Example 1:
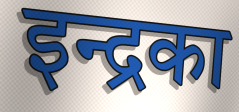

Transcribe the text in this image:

इन्द्रका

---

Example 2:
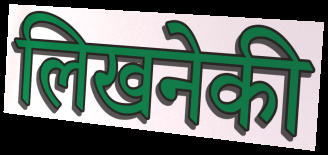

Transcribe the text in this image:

लिखनेकी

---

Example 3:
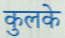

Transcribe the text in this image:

कुलके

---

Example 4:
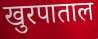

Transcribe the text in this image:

खुरपाताल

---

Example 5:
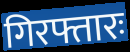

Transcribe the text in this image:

गिरफ्तारः